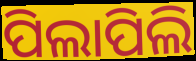
ପିଲାପିଲି